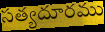
సత్యదూరము